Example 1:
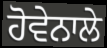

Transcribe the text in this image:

ਹੋਵੇਨਾਲੇ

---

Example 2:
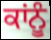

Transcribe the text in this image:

ਕਾਂਨੂੰ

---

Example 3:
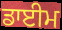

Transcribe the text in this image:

ਡਾਈਮ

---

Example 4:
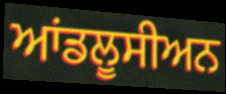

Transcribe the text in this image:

ਆਂਡਲੂਸੀਅਨ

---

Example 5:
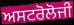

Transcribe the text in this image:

ਅਸਟਰੋਲੋਜੀ